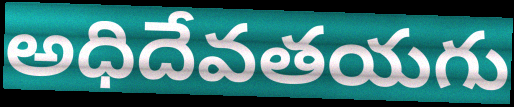
అధిదేవతయగు